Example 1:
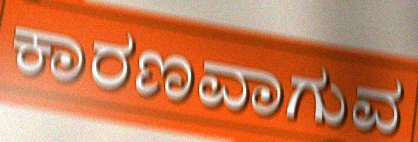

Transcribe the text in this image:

ಕಾರಣವಾಗುವ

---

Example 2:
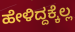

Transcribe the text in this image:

ಹೇಳಿದ್ದಕ್ಕೆಲ್ಲ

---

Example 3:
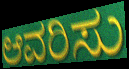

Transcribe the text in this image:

ಆವರಿಸು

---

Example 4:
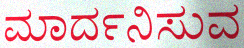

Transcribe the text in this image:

ಮಾರ್ದನಿಸುವ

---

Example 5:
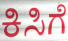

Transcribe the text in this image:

ಕಿಸಿಗೆ